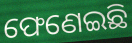
ଫେଣେଇଛି